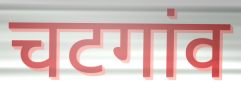
चटगांव